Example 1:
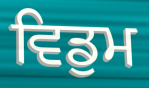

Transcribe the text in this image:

ਵਿਡੁਮ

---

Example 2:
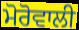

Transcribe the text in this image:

ਮੋਰੋਵਾਲੀ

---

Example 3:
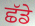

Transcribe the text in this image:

ਛੱਡੇ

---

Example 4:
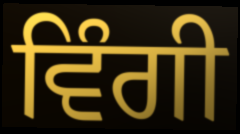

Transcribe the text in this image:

ਵਿੰਗੀ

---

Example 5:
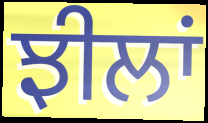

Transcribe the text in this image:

ਝੀਲਾਂ